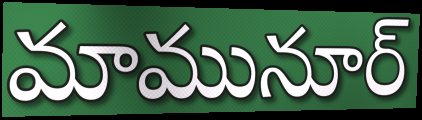
మామునూర్